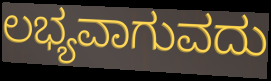
ಲಭ್ಯವಾಗುವದು